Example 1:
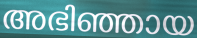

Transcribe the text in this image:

അഭിഞ്ഞായ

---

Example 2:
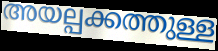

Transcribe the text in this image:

അയല്പക്കത്തുള്ള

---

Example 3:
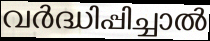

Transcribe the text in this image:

വർദ്ധിപ്പിച്ചാൽ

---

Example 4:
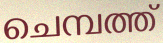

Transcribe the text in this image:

ചെമ്പത്ത്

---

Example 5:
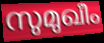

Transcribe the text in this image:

സുമുഖീം